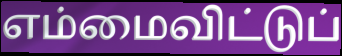
எம்மைவிட்டுப்